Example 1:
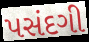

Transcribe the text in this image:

પસંદગી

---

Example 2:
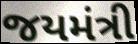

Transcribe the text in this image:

જયમંત્રી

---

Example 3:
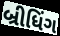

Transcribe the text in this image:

બ્રીધિંગ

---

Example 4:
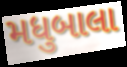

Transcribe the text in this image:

મધુબાલા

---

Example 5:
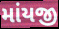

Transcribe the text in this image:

માંયજી